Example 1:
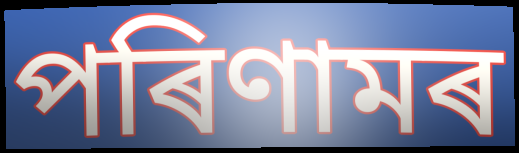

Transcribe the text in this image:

পৰিণামৰ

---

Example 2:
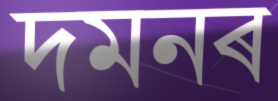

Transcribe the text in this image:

দমনৰ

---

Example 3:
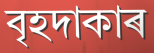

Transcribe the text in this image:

বৃহদাকাৰ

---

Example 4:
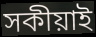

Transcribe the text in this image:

সকীয়াই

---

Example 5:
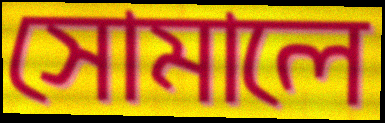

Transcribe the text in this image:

সোমালে